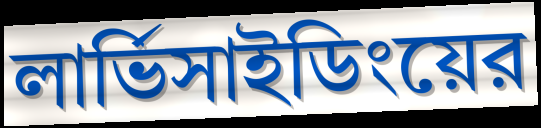
লার্ভিসাইডিংয়ের